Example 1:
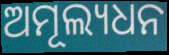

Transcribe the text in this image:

ଅମୂଲ୍ୟଧନ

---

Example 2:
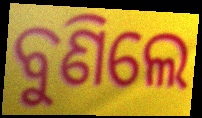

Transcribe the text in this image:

ବୁଣିଲେ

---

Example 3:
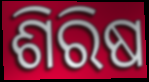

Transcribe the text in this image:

ଶିରିଷ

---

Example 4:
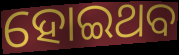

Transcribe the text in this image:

ହୋଇଥବ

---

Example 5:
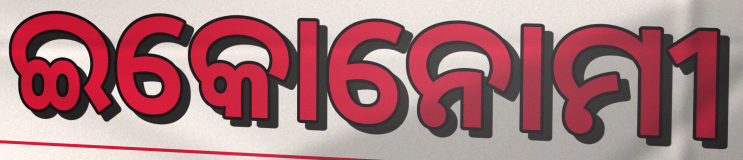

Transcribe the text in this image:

ଇକୋନୋମୀ